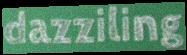
dazziling